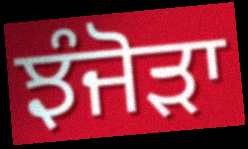
ਝੰਜੋੜਾ